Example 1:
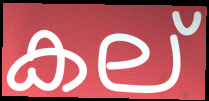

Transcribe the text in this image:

കല്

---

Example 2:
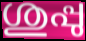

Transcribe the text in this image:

ശുപ്പു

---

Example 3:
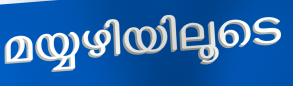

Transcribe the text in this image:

മയ്യഴിയിലൂടെ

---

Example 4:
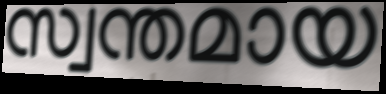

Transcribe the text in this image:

സ്വന്തമായ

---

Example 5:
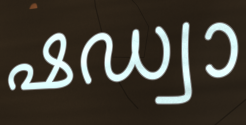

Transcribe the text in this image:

ഷഡ്വാ